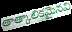
తాత్కాలికమైనవి